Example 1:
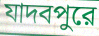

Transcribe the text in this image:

যাদবপুরে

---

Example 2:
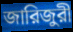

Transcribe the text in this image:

জারিজুরী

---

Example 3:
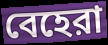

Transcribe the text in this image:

বেহেরা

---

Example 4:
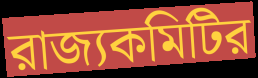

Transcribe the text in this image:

রাজ্যকমিটির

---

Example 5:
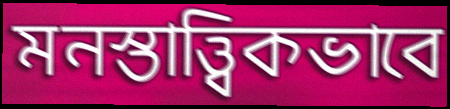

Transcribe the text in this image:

মনস্তাত্ত্বিকভাবে